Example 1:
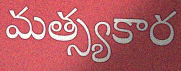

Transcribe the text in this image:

మత్స్యకార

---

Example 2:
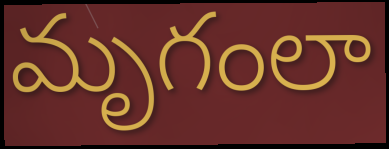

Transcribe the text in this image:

మృగంలా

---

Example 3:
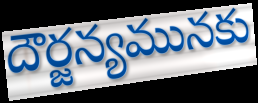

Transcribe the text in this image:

దౌర్జన్యమునకు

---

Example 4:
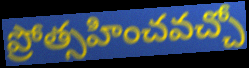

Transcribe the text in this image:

ప్రోత్సహించవచ్చో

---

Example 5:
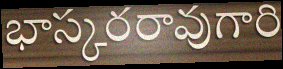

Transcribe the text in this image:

భాస్కరరావుగారి